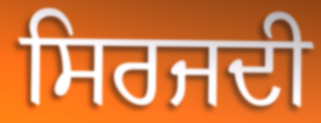
ਸਿਰਜਦੀ